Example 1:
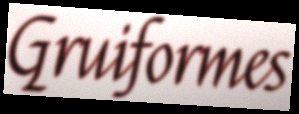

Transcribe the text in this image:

Gruiformes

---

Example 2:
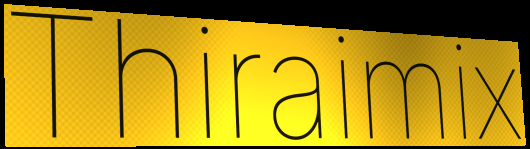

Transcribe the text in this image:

Thiraimix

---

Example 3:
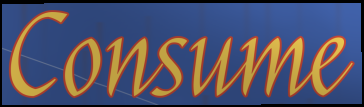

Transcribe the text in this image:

Consume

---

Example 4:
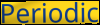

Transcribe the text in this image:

Periodic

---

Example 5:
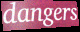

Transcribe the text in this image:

dangers